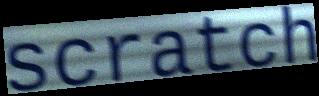
scratch